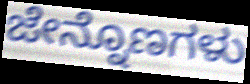
ಜೇನ್ನೊಣಗಳು